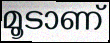
മൂടാണ്